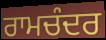
ਰਾਮਚੰਦਰ